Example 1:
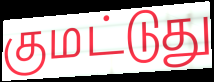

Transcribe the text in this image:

குமட்டுது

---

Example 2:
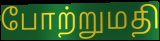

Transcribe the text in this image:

போற்றுமதி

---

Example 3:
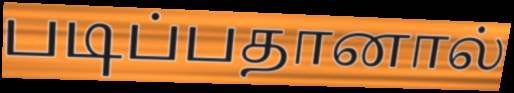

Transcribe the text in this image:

படிப்பதானால்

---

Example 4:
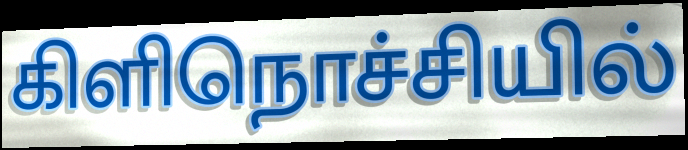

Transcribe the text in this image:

கிளிநொச்சியில்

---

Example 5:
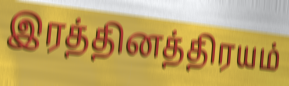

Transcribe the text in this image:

இரத்தினத்திரயம்